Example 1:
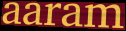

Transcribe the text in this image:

aaram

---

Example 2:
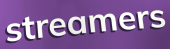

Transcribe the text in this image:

streamers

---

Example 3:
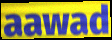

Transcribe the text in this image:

aawad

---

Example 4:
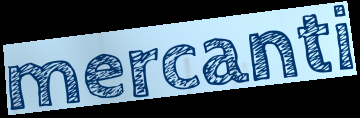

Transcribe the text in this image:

mercanti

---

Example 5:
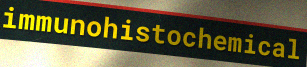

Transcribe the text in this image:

immunohistochemical